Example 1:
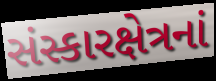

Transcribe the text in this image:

સંસ્કારક્ષેત્રનાં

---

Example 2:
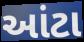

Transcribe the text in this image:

આંટા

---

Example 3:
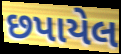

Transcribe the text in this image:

છપાયેલ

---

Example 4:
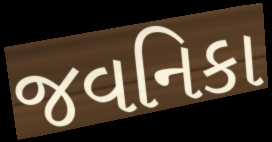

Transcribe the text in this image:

જવનિકા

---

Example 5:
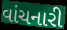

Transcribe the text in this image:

વાંચનારી